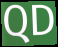
QD